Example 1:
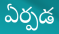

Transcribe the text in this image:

ఏర్పడ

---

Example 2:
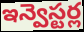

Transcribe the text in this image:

ఇన్వెస్టర్ల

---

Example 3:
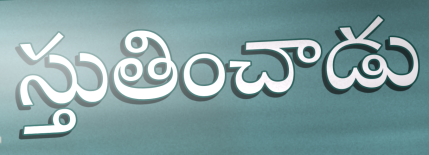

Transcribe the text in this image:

స్తుతించాడు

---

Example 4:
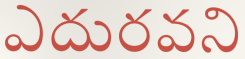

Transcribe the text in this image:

ఎదురవని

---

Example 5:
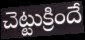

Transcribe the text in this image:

చెట్టుక్రిందే